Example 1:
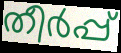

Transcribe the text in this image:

തീർപ്പ്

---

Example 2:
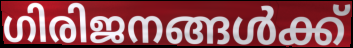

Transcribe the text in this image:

ഗിരിജനങ്ങൾക്ക്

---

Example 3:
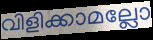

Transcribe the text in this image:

വിളിക്കാമല്ലോ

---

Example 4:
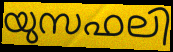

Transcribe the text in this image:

യുസഫലി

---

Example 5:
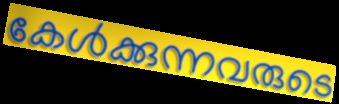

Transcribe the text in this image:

കേൾക്കുന്നവരുടെ